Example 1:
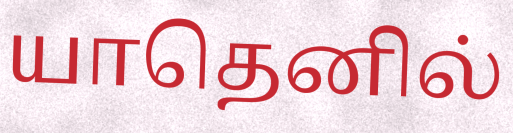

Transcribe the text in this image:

யாதெனில்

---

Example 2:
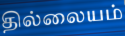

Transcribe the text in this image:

தில்லையம்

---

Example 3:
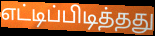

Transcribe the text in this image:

எட்டிப்பிடித்தது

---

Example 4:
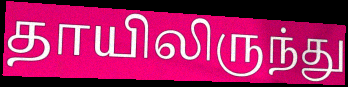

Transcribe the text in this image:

தாயிலிருந்து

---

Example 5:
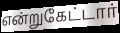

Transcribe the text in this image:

என்றுகேட்டார்